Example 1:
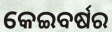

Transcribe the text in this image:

କେଇବର୍ଷର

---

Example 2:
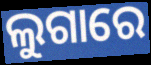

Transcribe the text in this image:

ଲୁଗାରେ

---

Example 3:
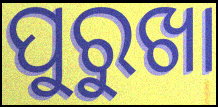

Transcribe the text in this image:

ପୁରୁଖା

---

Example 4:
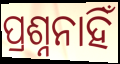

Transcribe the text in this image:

ପ୍ରଶ୍ନନାହିଁ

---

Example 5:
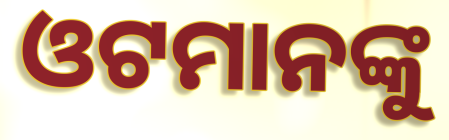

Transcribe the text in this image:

ଓଟମାନଙ୍କୁ